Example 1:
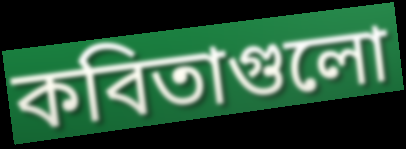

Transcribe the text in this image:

কবিতাগুলো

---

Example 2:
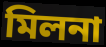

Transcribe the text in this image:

মিলনা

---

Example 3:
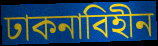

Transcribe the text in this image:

ঢাকনাবিহীন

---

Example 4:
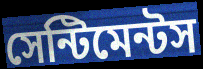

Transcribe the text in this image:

সেন্টিমেন্টস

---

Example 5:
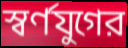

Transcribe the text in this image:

স্বর্ণযুগের